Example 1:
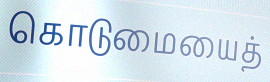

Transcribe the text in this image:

கொடுமையைத்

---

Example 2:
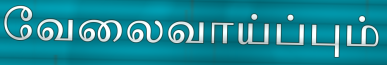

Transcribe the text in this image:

வேலைவாய்ப்பும்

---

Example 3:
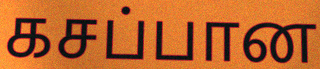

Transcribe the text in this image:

கசப்பான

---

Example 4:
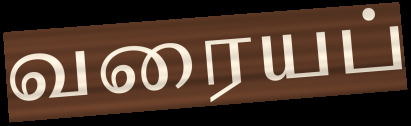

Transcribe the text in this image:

வரையப்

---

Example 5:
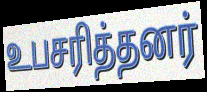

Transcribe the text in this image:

உபசரித்தனர்